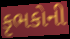
કૃભકોની